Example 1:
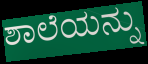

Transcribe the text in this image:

ಶಾಲೆಯನ್ನು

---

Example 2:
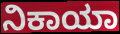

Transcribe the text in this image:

ನಿಕಾಯಾ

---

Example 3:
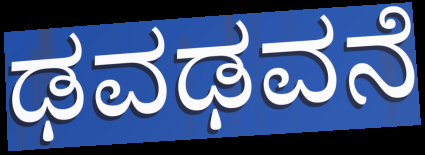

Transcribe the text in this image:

ಢವಢವನೆ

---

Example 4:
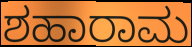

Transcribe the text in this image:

ಶಹಾರಾಮ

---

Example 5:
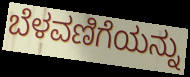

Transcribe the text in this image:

ಬೆಳವಣಿಗೆಯನ್ನು